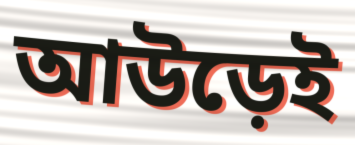
আউড়েই